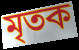
মৃতক